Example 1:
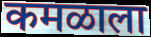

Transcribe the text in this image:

कमळाला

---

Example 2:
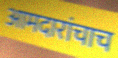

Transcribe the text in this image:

आमदारांचाच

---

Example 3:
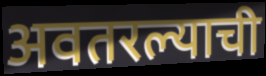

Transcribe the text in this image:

अवतरल्याची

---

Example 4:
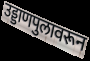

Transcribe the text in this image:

उड्डाणपुलावरून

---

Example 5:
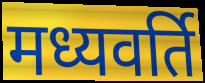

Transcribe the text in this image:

मध्यवर्ति